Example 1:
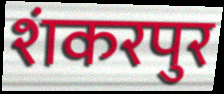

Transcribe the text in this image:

शंकरपुर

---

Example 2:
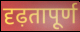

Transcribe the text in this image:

दृढ़तापूर्ण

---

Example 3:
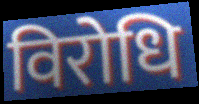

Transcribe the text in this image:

विरोधि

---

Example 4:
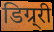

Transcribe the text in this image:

डिग्र्री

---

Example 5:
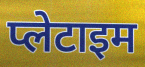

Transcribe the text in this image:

प्लेटाइम